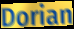
Dorian